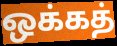
ஒக்கத்